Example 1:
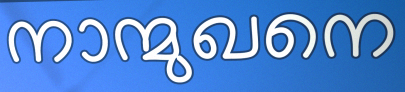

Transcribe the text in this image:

നാന്മുഖനെ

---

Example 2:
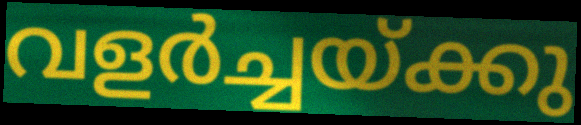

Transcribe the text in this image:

വളർച്ചയ്ക്കു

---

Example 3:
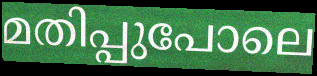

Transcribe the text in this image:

മതിപ്പുപോലെ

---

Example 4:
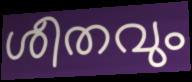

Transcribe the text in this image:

ശീതവും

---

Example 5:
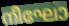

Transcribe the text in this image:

നീഘോ